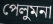
পেলুমনা